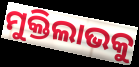
ମୁକ୍ତିଲାଭକୁ